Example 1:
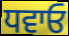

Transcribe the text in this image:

ਧਵਾਓ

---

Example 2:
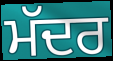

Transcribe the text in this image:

ਮੱਦਰ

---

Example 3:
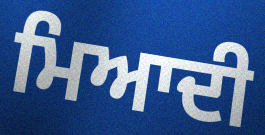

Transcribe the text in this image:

ਮਿਆਦੀ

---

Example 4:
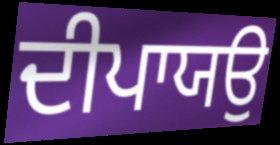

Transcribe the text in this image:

ਦੀਪਾਯਉ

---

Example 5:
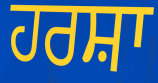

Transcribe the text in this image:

ਹਰਸ਼ਾ